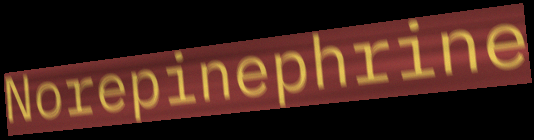
Norepinephrine